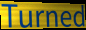
Turned